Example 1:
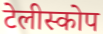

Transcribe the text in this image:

टेलीस्कोप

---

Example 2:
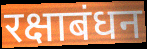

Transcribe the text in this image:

रक्षाबंधन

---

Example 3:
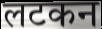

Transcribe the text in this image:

लटकन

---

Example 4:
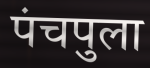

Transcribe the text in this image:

पंचपुला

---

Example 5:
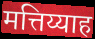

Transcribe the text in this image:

मत्तिय्याह